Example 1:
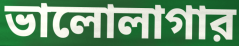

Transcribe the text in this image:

ভালোলাগার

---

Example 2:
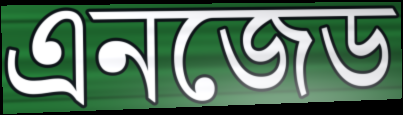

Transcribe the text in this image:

এনজেড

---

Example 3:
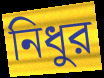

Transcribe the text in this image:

নিধুর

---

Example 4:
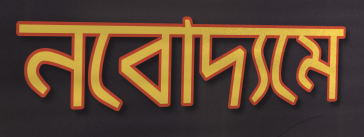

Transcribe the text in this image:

নবোদ্যমে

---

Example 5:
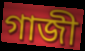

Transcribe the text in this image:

গাজী